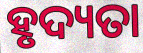
ହୃଦ୍ୟତା